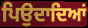
ਪਿਉਦਾਦਿਆਂ